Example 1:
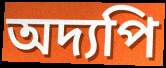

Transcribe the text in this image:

অদ্যপি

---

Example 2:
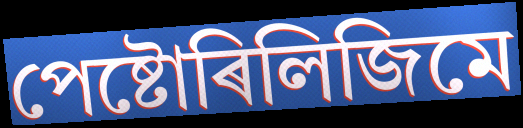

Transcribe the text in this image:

পেষ্টোৰিলিজিমে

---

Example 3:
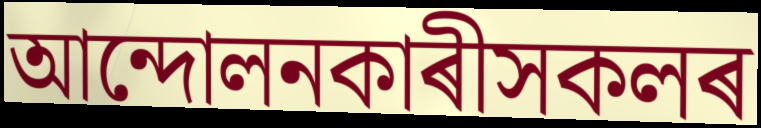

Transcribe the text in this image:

আন্দোলনকাৰীসকলৰ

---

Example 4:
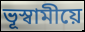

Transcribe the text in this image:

ভূস্বামীয়ে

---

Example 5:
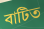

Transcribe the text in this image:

বাটিত